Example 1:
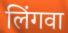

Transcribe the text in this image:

लिंगवा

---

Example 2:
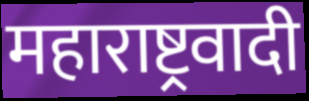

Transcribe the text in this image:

महाराष्ट्रवादी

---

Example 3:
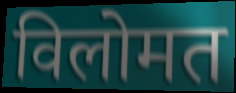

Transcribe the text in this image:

विलोमत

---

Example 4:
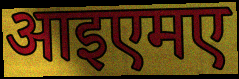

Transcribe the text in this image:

आइएमए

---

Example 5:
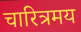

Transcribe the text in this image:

चारित्रमय